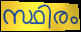
സ്ഥിരം